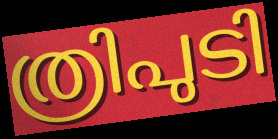
ത്രിപുടി